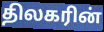
திலகரின்